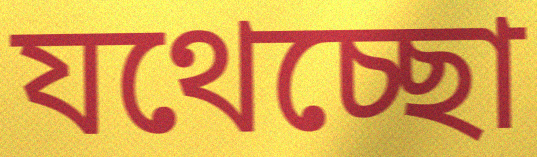
যথেচ্ছো